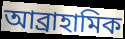
আব্ৰাহামিক